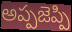
అప్పజెప్పి